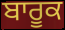
ਬਾਰੂਕ